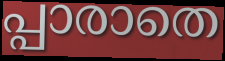
പ്പാരാതെ